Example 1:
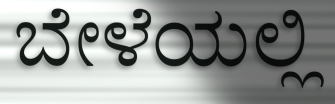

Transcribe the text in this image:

ಬೇಳೆಯಲ್ಲಿ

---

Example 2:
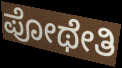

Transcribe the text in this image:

ಪೋಥೇತಿ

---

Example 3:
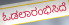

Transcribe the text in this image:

ಓಡಲಾರಂಭಿಸಿದೆ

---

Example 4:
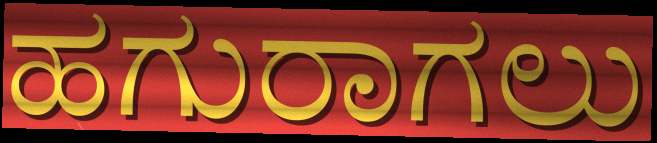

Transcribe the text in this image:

ಹಗುರಾಗಲು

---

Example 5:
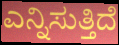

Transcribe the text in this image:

ಎನ್ನಿಸುತ್ತಿದೆ